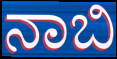
ನಾಬಿ